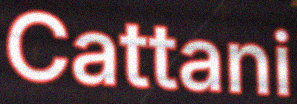
Cattani